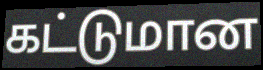
கட்டுமான